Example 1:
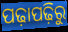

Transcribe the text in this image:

ପଢ଼ାପଢ଼ିରୁ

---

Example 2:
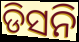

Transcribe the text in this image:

ଡିସନି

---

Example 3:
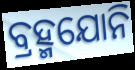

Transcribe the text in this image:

ବ୍ରହ୍ମଯୋନି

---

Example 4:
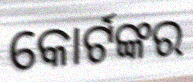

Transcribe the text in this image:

କୋର୍ଟଙ୍କର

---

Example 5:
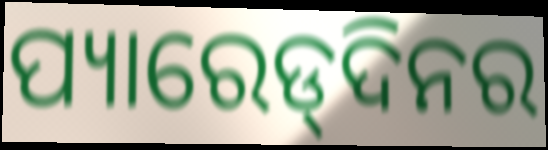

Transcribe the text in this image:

ପ୍ୟାରେଡ୍‌ଦିନର